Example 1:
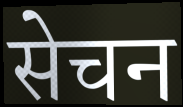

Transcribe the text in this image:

सेचन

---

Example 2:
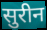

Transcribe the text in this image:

सुरीन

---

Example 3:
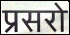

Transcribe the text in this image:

प्रसरो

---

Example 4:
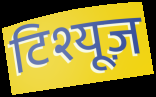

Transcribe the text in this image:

टिश्यूज़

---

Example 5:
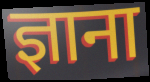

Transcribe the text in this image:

ज्ञाना